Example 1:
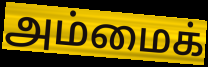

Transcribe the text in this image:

அம்மைக்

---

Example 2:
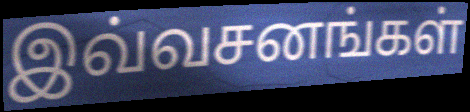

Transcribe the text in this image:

இவ்வசனங்கள்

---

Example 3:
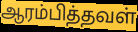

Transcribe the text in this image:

ஆரம்பித்தவள்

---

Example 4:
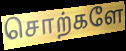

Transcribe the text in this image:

சொற்களே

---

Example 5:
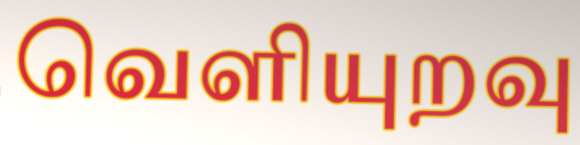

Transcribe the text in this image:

வெளியுறவு